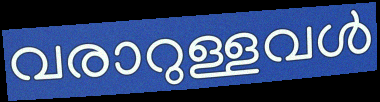
വരാറുള്ളവൾ